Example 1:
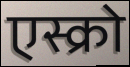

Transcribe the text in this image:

एस्क्रो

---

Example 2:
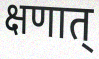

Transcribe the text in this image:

क्षणात्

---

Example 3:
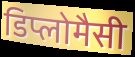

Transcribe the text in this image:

डिप्लोमैसी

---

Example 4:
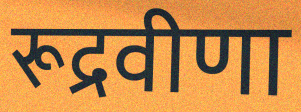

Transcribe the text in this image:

रूद्रवीणा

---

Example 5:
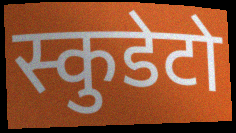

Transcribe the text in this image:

स्कुडेटो